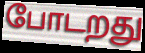
போடறது